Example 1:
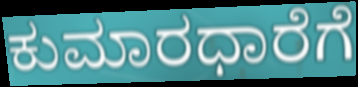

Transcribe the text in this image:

ಕುಮಾರಧಾರೆಗೆ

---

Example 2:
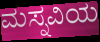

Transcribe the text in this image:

ಮಸ್ನವಿಯ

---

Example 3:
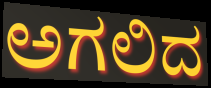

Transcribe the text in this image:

ಅಗಲಿದ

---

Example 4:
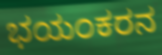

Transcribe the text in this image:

ಭಯಂಕರನ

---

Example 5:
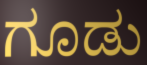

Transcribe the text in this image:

ಗೂಡು